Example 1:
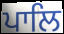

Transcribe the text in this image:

ਪਾਲਿ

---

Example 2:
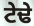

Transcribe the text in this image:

ਟੇਢੇ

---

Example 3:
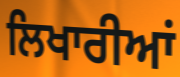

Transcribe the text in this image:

ਲਿਖਾਰੀਆਂ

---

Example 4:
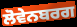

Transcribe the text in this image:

ਲੋਵੇਨਬਰਗ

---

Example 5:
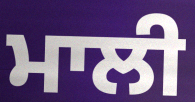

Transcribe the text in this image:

ਮਾਲੀ